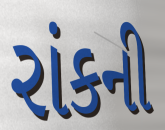
રાંકની